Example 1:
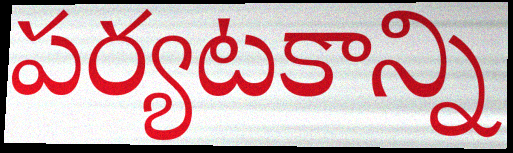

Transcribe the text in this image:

పర్యటకాన్ని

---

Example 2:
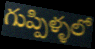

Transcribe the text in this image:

గుప్పిళ్ళలో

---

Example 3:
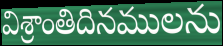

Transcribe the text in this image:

విశ్రాంతిదినములను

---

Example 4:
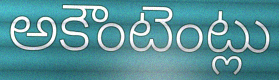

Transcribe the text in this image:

అకౌంటెంట్లు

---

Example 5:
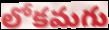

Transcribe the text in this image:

లోకమగు